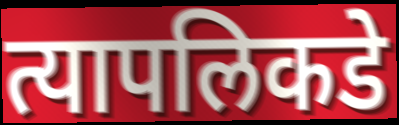
त्यापलिकडे